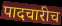
पादचारीच